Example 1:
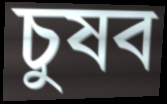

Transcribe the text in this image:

চুষব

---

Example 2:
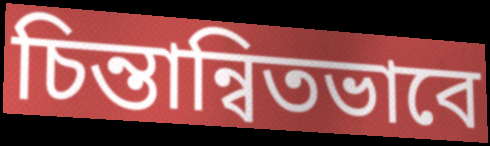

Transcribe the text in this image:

চিন্তান্বিতভাবে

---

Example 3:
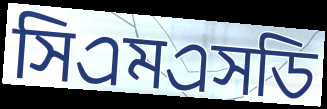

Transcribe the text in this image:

সিএমএসডি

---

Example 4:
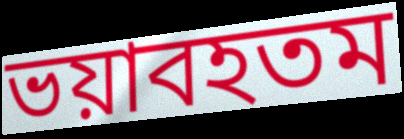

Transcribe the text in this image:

ভয়াবহতম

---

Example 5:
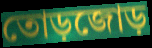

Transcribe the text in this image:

তোড়জোড়